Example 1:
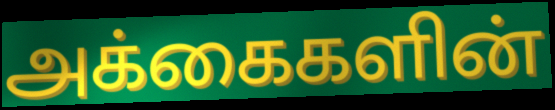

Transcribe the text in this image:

அக்கைகளின்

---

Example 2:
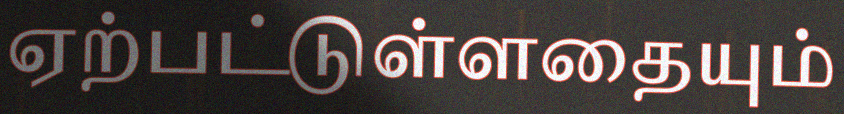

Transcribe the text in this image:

ஏற்பட்டுள்ளதையும்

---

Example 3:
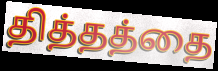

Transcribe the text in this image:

தித்தத்தை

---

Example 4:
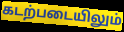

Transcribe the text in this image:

கடற்படையிலும்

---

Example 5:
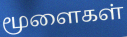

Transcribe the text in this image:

மூளைகள்